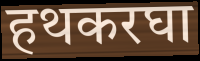
हथकरघा